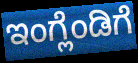
ಇಂಗ್ಲೆಂಡಿಗೆ